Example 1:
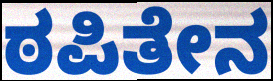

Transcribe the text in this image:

ಠಪಿತೇನ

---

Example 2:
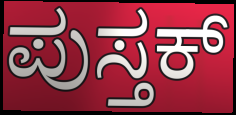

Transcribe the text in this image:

ಪುಸ್ತಕ್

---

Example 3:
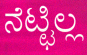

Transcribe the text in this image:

ನೆಟ್ಟಿಲ್ಲ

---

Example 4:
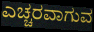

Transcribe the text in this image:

ಎಚ್ಚರವಾಗುವ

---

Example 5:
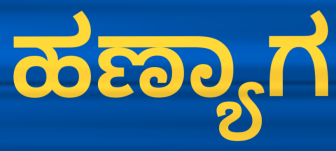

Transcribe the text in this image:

ಹಣ್ಯಾಗ